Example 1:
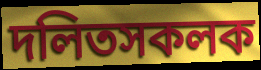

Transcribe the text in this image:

দলিতসকলক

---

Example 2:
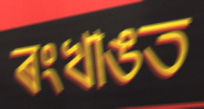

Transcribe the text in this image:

ৰংখাঙত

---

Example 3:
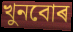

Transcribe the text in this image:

খুনবোৰ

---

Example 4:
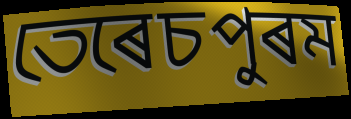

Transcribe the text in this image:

তেৰেচপুৰম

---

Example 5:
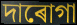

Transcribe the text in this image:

দাৰোগা